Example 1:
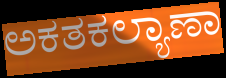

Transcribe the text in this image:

ಅಕತಕಲ್ಯಾಣಾ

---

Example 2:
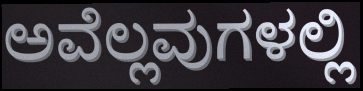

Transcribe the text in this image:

ಅವೆಲ್ಲವುಗಳಲ್ಲಿ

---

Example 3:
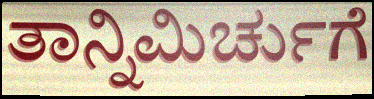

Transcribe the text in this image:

ತಾನ್ನಿಮಿರ್ಚುಗೆ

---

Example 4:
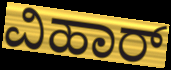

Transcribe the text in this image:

ವಿಹಾರ್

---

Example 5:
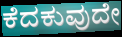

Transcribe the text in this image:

ಕೆದಕುವುದೇ